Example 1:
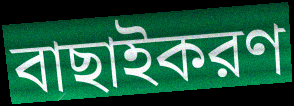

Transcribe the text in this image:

বাছাইকরণ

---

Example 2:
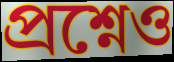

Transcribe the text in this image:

প্রশ্নেও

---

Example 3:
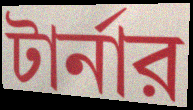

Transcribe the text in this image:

টার্নার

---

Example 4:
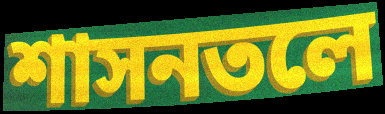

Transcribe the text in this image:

শাসনতলে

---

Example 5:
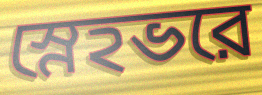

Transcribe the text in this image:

স্নেহভরে